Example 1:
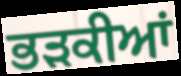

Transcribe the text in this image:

ਭੜਕੀਆਂ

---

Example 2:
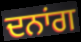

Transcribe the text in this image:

ਦਨਾਂਗ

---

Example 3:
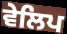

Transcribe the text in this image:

ਵੇਲਿਪ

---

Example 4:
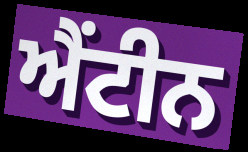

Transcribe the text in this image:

ਐਂਟੀਨ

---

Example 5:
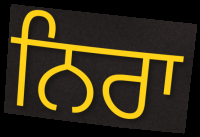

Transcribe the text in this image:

ਨਿਰਾ